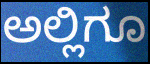
ಅಲ್ಲಿಗೂ